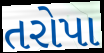
તરોપા